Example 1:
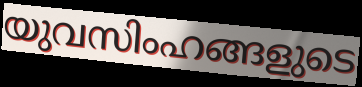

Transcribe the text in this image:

യുവസിംഹങ്ങളുടെ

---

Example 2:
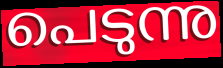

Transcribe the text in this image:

പെടുന്നു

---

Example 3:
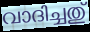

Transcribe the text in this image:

വാദിച്ചതു്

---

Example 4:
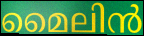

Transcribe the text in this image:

മൈലിൻ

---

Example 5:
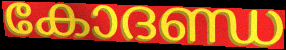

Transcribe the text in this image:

കോദണ്ഡ